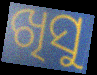
ଖିସୁ